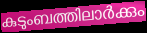
കുടുംബത്തിലാർക്കും